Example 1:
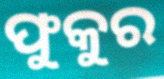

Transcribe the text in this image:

ଫୁକୁର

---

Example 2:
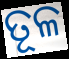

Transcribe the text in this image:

ତୂଳ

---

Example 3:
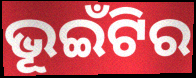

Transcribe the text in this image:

ଭୂଇଁଟିର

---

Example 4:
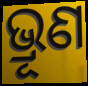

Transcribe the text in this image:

ଭ୍ରୂଣ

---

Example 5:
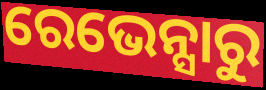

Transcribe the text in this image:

ରେଭେନ୍ସାରୁ